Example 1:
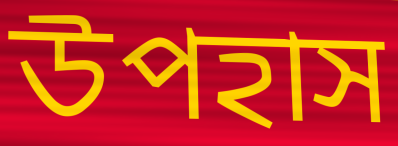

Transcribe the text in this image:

উপহাস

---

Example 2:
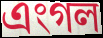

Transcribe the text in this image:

এংগল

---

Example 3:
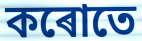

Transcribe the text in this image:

কৰোতে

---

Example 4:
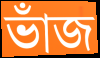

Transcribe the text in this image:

ভাঁজ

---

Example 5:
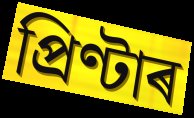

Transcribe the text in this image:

প্ৰিণ্টাৰ